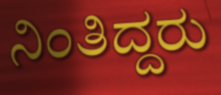
ನಿಂತಿದ್ದರು